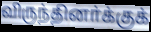
விருந்தினர்க்குக்